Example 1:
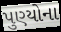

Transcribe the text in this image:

પુણ્યોના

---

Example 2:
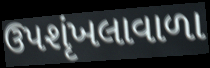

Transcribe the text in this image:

ઉપશૃંખલાવાળા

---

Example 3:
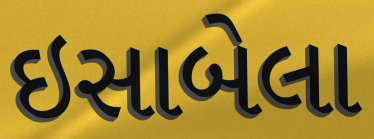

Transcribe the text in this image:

ઇસાબેલા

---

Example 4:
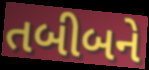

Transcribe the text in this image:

તબીબને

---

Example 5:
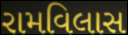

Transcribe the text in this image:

રામવિલાસ